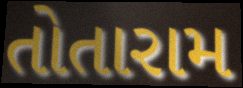
તોતારામ